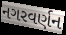
નગરવર્ણન